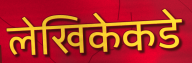
लेखिकेकडे